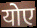
योए